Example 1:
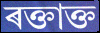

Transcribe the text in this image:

ৰক্তাক্ত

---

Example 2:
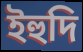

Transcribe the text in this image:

ইহুদি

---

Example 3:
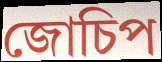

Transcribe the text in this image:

জোচিপ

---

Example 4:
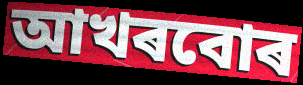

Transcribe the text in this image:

আখৰবোৰ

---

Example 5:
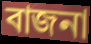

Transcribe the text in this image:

বাজনা